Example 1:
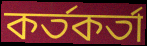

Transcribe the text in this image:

কর্তকর্তা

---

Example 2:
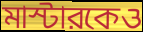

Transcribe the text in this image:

মাস্টারকেও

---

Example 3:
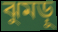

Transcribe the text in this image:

ঝুমড়ু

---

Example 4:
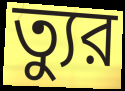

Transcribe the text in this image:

ত্যুর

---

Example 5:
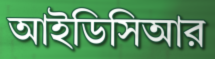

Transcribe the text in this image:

আইডিসিআর